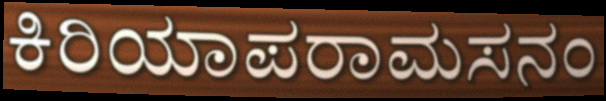
ಕಿರಿಯಾಪರಾಮಸನಂ